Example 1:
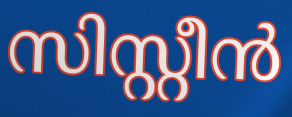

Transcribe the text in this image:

സിസ്റ്റീൻ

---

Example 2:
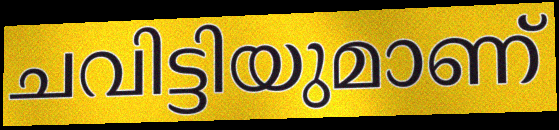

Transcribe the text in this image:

ചവിട്ടിയുമാണ്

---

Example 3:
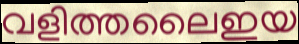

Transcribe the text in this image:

വളിത്തലൈഇയ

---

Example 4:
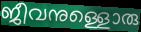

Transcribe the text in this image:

ജീവനുള്ളൊരു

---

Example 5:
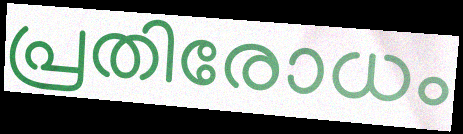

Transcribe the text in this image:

പ്രതിരോധം